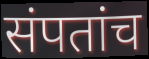
संपतांच